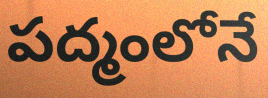
పద్మంలోనే